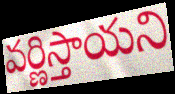
వర్ణిస్తాయని